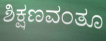
ಶಿಕ್ಷಣವಂತೂ